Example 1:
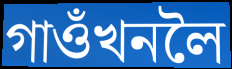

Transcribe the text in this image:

গাওঁখনলৈ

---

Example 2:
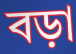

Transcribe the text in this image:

বড়া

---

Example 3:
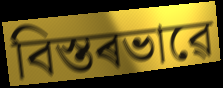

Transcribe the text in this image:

বিস্তৰভাৱে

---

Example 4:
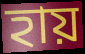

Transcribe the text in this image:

হায়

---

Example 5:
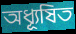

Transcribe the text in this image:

অধ্যূষিত